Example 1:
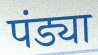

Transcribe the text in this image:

पंड्या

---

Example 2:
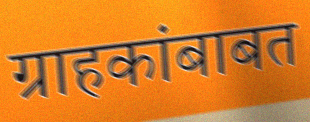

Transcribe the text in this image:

ग्राहकांबाबत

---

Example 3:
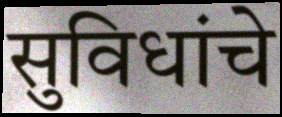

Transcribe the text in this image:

सुविधांचे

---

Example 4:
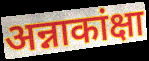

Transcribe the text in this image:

अन्नाकांक्षा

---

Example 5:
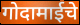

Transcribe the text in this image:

गोदामाईचे